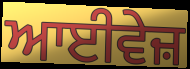
ਆਈਵੇਜ਼